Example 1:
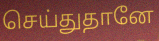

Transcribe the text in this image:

செய்துதானே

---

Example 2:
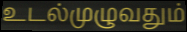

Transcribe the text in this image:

உடல்முழுவதும்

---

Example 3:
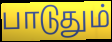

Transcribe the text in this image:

பாடுதும்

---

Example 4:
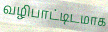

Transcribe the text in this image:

வழிபாட்டிடமாக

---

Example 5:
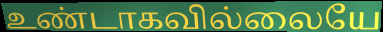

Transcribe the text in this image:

உண்டாகவில்லையே